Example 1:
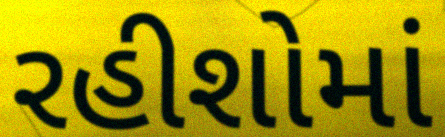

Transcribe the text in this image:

રહીશોમાં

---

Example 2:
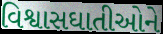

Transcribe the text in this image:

વિશ્વાસઘાતીઓને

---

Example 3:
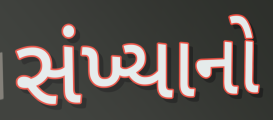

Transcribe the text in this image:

સંખ્યાનો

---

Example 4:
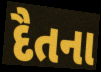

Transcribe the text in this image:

દૈતના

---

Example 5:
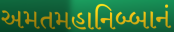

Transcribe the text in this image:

અમતમહાનિબ્બાનં